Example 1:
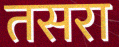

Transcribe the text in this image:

तसरा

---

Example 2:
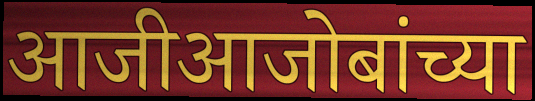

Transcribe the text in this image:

आजीआजोबांच्या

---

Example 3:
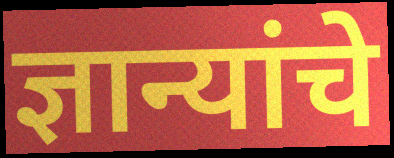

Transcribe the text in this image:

ज्ञान्यांचे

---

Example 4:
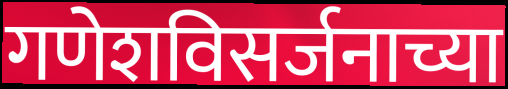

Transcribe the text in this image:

गणेशविसर्जनाच्या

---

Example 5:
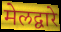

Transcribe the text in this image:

मेलद्वारे